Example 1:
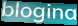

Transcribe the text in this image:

blogina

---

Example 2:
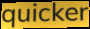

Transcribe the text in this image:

quicker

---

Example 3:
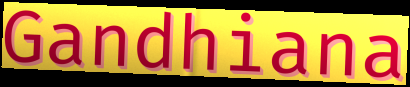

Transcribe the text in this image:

Gandhiana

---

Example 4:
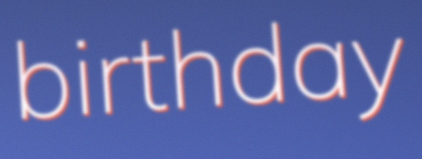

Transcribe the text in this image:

birthday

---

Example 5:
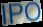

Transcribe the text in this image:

IPO